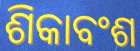
ଶିକାବଂଶ